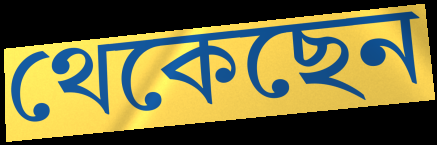
থেকেছেন